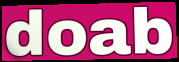
doab